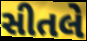
સીતલે